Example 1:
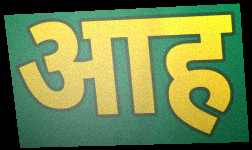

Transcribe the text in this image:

आह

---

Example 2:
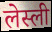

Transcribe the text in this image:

लेस्ली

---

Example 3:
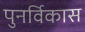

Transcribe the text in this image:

पुनर्विकास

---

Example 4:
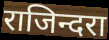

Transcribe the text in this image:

राजिन्दरा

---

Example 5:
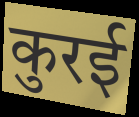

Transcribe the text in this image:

कुरई